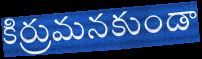
కిర్రుమనకుండా